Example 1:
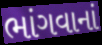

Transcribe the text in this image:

ભાંગવાનાં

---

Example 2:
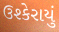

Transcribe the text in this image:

ઉશ્કેરાયું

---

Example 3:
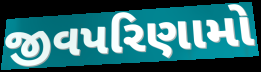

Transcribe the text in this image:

જીવપરિણામો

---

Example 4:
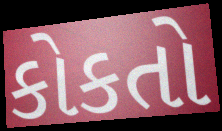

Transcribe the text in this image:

કોકતો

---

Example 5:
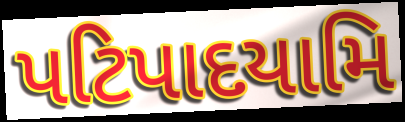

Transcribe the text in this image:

પટિપાદયામિ